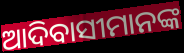
ଆଦିବାସୀମାନଙ୍କ